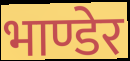
भाण्डेर